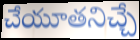
చేయూతనిచ్చే